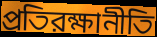
প্রতিরক্ষানীতি